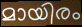
മായിരം